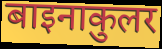
बाइनाकुलर